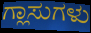
ಗ್ಲಾಸುಗಳು